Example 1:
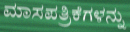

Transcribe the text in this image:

ಮಾಸಪತ್ರಿಕೆಗಳನ್ನು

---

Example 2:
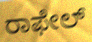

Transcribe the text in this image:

ರಾಫೇಲ್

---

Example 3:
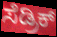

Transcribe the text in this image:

ಸೆಡ್ರಿಕ್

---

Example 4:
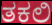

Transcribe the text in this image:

ತಕಲಿ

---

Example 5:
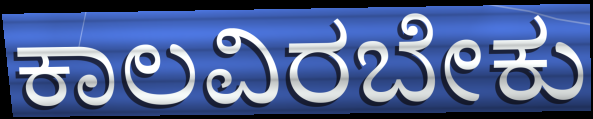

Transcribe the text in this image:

ಕಾಲವಿರಬೇಕು